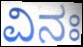
ವಿನಃ